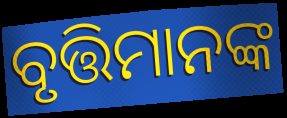
ବୃତ୍ତିମାନଙ୍କ